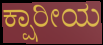
ಕ್ಷಾರೀಯ